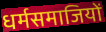
धर्मसमाजियों